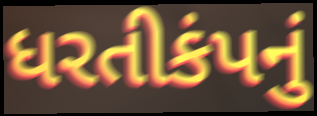
ધરતીકંપનું